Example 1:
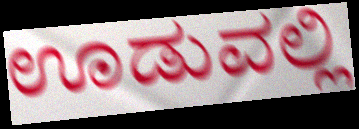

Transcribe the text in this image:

ಊಡುವಲ್ಲಿ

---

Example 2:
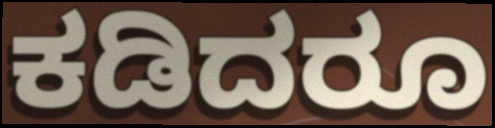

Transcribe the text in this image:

ಕಡಿದರೂ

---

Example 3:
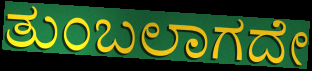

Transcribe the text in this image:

ತುಂಬಲಾಗದೇ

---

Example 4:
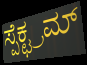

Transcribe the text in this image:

ಸ್ಪೆಕ್ಟ್ರಮ್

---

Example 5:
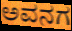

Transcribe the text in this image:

ಅವನಗ